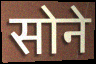
सोने